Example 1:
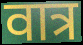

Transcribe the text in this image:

वात्र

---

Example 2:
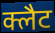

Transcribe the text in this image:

क्लैट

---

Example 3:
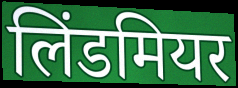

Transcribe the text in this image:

लिंडमियर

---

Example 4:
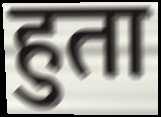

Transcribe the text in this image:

हुता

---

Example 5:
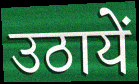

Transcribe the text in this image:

उठायें